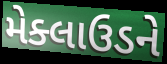
મેક્લાઉડને